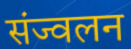
संज्वलन